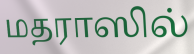
மதராஸில்